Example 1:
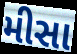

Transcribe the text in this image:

મીસા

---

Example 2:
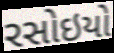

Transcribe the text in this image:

રસોઇયો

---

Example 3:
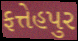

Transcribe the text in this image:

ફત્તેહપુર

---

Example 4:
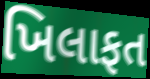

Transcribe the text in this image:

ખિલાફત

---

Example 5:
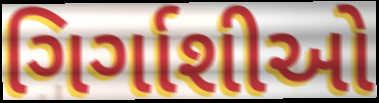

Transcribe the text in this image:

ગિર્ગાશીઓ